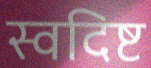
स्वदिष्ट